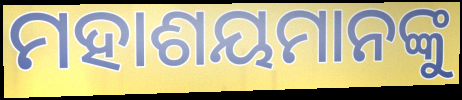
ମହାଶୟମାନଙ୍କୁ